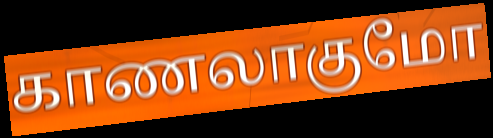
காணலாகுமோ